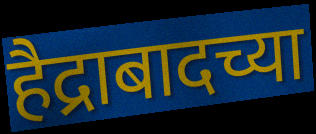
हैद्राबादच्या